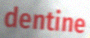
dentine